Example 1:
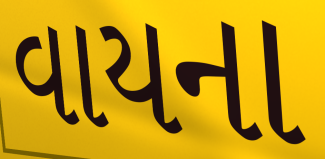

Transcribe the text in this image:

વાયના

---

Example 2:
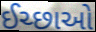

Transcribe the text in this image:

ઈચ્છાઓ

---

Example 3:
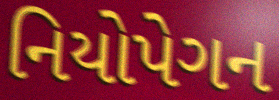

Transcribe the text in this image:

નિયોપેગન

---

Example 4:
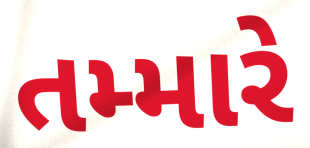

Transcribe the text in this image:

તમ્મારે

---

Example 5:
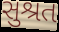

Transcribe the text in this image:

સુશ્રત